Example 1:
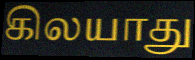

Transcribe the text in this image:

கிலயாது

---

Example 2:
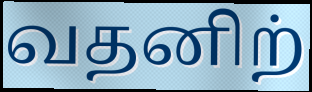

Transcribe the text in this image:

வதனிற்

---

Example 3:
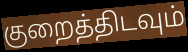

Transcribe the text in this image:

குறைத்திடவும்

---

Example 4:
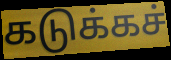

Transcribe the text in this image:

கடுக்கச்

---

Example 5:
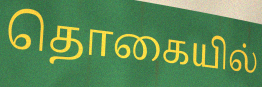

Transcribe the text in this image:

தொகையில்